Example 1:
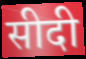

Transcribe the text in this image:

सीदी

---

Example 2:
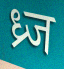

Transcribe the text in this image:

ध्र्ज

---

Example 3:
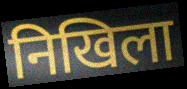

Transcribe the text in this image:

निखिला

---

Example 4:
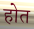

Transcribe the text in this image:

होत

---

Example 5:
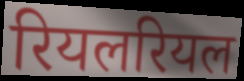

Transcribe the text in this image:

रियलरियल